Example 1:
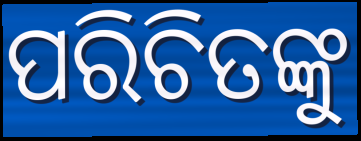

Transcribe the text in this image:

ପରିଚିତଙ୍କୁ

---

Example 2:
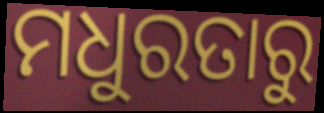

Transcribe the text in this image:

ମଧୁରତାରୁ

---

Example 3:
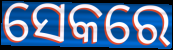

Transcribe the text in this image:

ସେକରେ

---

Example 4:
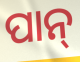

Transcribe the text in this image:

ପାନ୍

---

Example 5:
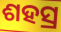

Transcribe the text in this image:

ଶହସ୍ର